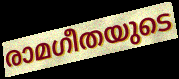
രാമഗീതയുടെ